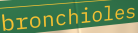
bronchioles